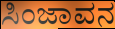
ಸಿಂಜಾವನ